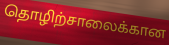
தொழிற்சாலைக்கான